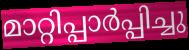
മാറ്റിപ്പാർപ്പിച്ചു